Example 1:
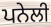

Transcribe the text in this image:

ਪਨੇਲੀ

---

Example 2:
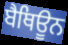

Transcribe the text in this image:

ਬੈਥਿਊਨ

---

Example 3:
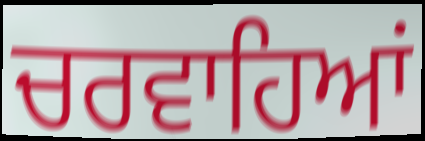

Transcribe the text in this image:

ਚਰਵਾਹਿਆਂ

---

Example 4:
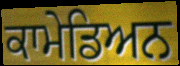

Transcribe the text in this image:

ਕਾਮੇਡਿਅਨ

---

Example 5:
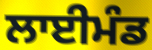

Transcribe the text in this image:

ਲਾਈਮੰਡ